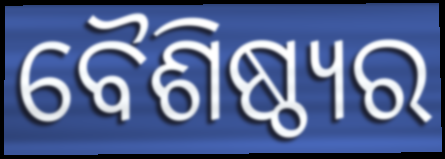
ବୈଶିଷ୍ଠ୍ୟର